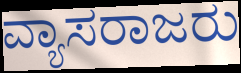
ವ್ಯಾಸರಾಜರು